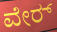
ವೇರ್‍